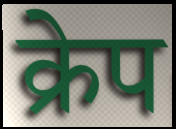
क्रेप